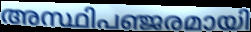
അസ്ഥിപഞ്ജരമായി